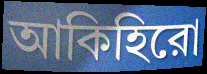
আকিহিরো